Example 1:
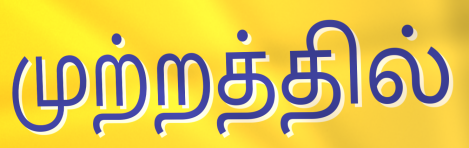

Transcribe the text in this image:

முற்றத்தில்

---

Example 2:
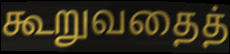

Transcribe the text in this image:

கூறுவதைத்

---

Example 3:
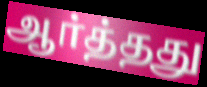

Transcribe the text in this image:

ஆர்த்தது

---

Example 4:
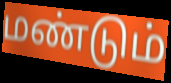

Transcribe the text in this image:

மண்டும்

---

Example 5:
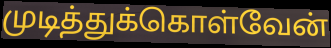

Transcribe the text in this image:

முடித்துக்கொள்வேன்